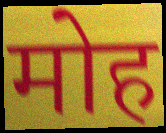
मोह